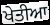
ਖੇਤੀਆ